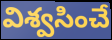
విశ్వసించే